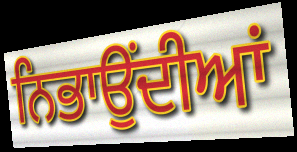
ਨਿਭਾਉਂਦੀਆਂ